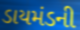
ડાયમંડની